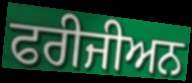
ਫਰੀਜੀਅਨ